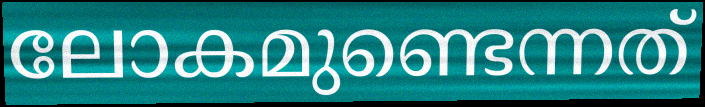
ലോകമുണ്ടെന്നത്